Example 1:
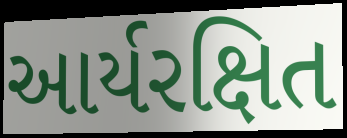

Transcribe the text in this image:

આર્યરક્ષિત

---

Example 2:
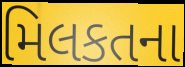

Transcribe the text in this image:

મિલકતના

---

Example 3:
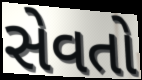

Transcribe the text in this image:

સેવતો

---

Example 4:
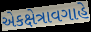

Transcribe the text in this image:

એકક્ષેત્રાવગાહે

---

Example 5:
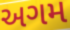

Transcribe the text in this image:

અગમ